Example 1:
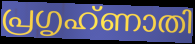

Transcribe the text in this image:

പ്രഗൃഹ്ണാതി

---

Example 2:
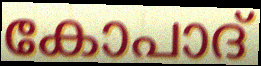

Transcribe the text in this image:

കോപാദ്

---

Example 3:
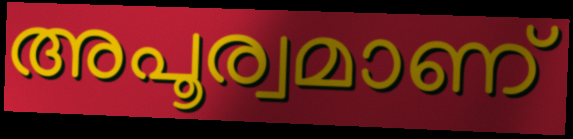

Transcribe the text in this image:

അപൂര്വമാണ്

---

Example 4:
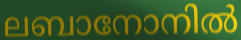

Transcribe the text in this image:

ലബാനോനിൽ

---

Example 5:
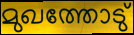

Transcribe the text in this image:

മുഖത്തോടു്